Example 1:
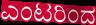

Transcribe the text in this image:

ಎಂಟರಿಂದ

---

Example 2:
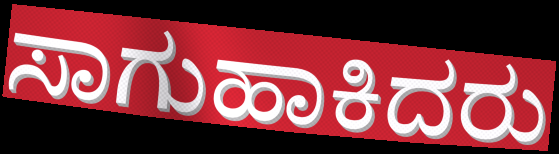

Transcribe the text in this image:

ಸಾಗುಹಾಕಿದರು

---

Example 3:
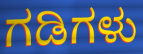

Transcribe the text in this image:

ಗಡಿಗಳು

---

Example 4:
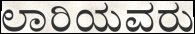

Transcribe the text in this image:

ಲಾರಿಯವರು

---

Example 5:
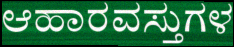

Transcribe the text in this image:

ಆಹಾರವಸ್ತುಗಳ